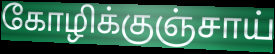
கோழிக்குஞ்சாய்